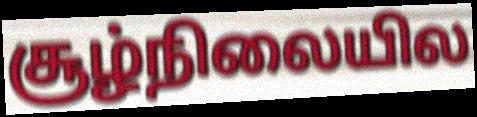
சூழ்நிலையில